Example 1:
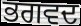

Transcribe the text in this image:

ਭਗਵਦ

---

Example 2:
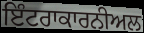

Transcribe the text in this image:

ਇੰਟਰਾਕਾਰਨੀਅਲ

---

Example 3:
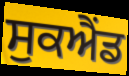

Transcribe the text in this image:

ਸੁਕਐਂਡ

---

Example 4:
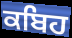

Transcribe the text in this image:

ਕਬਿਹ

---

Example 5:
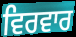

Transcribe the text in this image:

ਵਿਰਵਾਰ